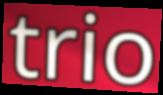
trio